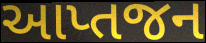
આપ્તજન